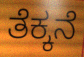
ತೆಕ್ಕನೆ